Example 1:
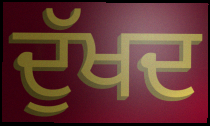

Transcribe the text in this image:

ਦੁੱਖਦ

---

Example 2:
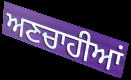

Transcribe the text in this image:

ਅਣਚਾਹੀਆਂ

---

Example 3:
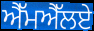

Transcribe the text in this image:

ਐੱਮਐੱਲਏ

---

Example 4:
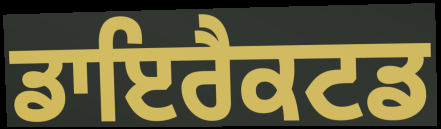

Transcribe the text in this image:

ਡਾਇਰੈਕਟਡ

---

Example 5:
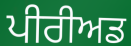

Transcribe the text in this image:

ਪੀਰੀਅਡ